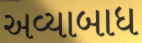
અવ્યાબાધ